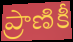
ప్రాణికీ